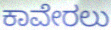
ಕಾವೇರಲು